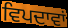
ਵਿਪਦਾਵਾਂ